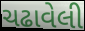
ચઢાવેલી